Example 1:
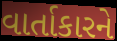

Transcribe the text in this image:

વાર્તાકારને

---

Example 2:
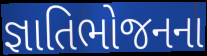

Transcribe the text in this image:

જ્ઞાતિભોજનના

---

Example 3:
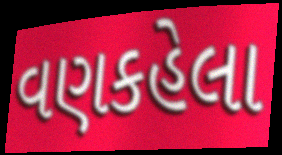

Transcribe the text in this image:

વણકહેલા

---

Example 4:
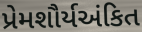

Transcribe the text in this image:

પ્રેમશૌર્યઅંકિત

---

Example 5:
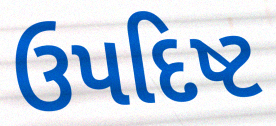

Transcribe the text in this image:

ઉપદિષ્ટ